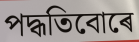
পদ্ধতিবোৰে